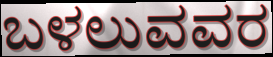
ಬಳಲುವವರ